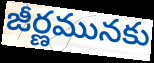
జీర్ణమునకు